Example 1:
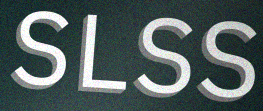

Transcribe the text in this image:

SLSS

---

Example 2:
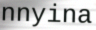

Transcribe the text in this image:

nnyina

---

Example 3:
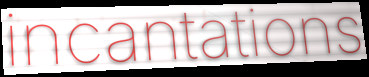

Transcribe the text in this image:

incantations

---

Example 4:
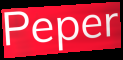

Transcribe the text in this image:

Peper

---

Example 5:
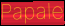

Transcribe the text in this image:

Papale